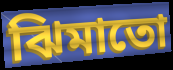
ঝিমাতো